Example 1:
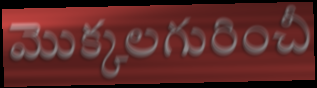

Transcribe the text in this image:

మొక్కలగురించీ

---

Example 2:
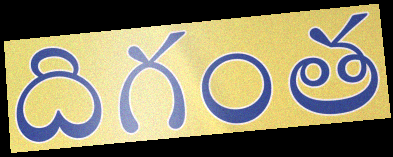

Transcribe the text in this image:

దిగంత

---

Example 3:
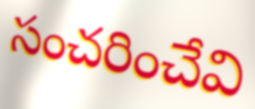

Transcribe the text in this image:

సంచరించేవి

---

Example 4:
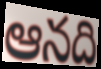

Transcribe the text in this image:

ఆనది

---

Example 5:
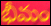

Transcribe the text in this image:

భీమం